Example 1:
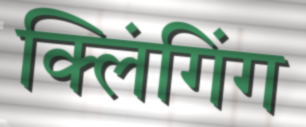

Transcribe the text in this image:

क्लिंगिंग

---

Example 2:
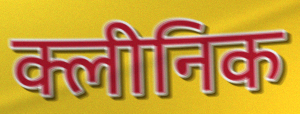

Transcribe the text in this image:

क्लीनिक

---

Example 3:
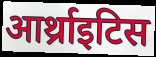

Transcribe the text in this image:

आर्थ्राइटिस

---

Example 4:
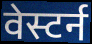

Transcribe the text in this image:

वेस्टर्न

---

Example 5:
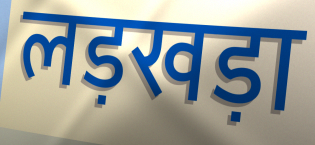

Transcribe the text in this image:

लड़खड़ा